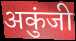
अकुंजी